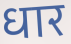
धार